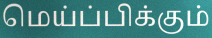
மெய்ப்பிக்கும்